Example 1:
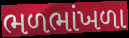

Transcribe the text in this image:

ભળભાંખળા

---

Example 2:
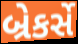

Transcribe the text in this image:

બ્રેકર્સે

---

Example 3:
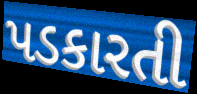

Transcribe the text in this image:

પડકારતી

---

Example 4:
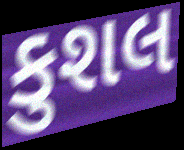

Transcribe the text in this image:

કુશલ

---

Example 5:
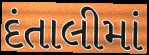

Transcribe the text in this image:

દંતાલીમાં